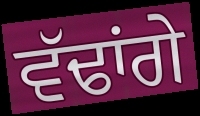
ਵੱਢਾਂਗੇ